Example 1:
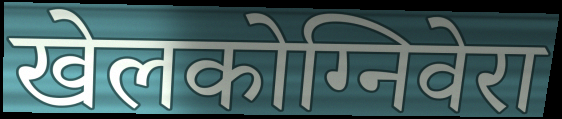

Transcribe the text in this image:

खेलकोग्निवेरा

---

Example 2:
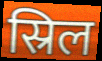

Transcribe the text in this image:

स्रिल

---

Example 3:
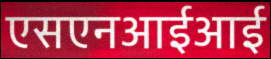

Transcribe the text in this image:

एसएनआईआई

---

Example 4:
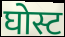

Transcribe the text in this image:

घोस्ट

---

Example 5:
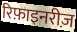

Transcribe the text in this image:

रिफ़ाइनरीज़